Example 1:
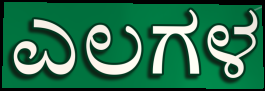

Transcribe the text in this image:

ಎಲಗಳ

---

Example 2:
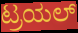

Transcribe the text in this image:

ಟ್ರಯಲ್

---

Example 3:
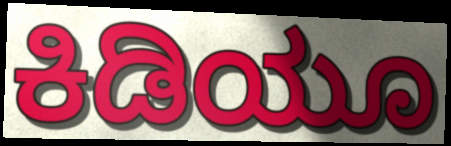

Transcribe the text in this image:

ಕಿಡಿಯೂ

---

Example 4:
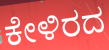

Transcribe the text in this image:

ಕೇಳಿರದ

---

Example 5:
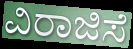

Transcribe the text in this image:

ವಿರಾಜಿಸೆ